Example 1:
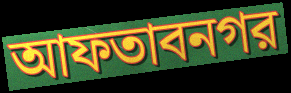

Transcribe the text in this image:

আফতাবনগর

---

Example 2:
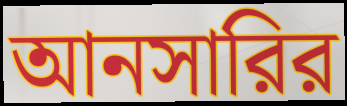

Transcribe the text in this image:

আনসারির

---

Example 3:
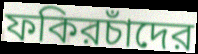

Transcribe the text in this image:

ফকিরচাঁদের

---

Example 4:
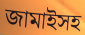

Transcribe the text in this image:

জামাইসহ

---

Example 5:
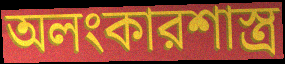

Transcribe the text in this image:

অলংকারশাস্ত্র